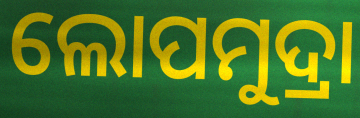
ଲୋପମୁଦ୍ରା